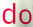
do